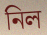
নিল